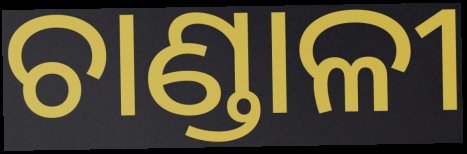
ଚାଣ୍ଡାଳୀ